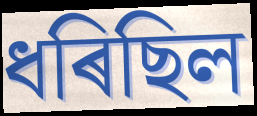
ধৰিছিল